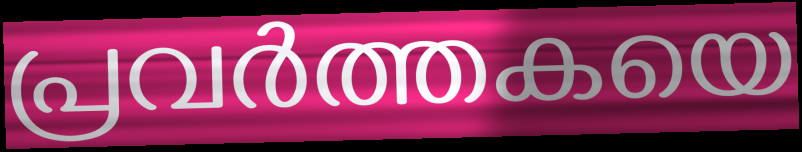
പ്രവർത്തകയെ